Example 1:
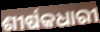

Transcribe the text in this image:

ଶୀର୍ଷକଧାରୀ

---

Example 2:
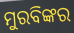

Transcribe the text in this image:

ମୁରବିଙ୍କର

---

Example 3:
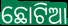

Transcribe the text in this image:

ଛୋଟିଆ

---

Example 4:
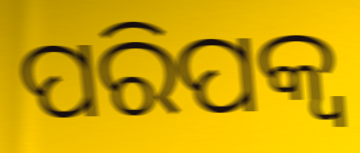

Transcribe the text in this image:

ପରିପକ୍ବ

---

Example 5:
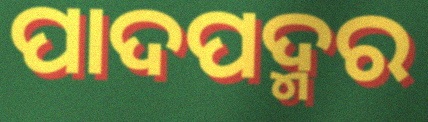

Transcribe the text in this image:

ପାଦପଦ୍ମର